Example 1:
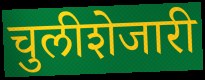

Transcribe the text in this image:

चुलीशेजारी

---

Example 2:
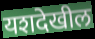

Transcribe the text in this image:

यशदेखील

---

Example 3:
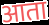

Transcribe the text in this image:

आता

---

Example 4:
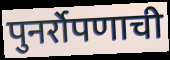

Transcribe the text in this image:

पुनर्रोपणाची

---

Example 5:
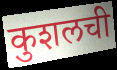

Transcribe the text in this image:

कुशलची